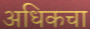
अधिकचा